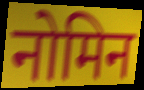
नोमिन